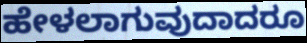
ಹೇಳಲಾಗುವುದಾದರೂ